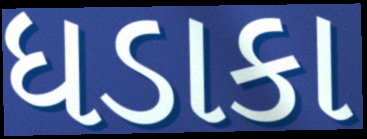
ધડાકા